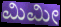
ಮಿಮೀ